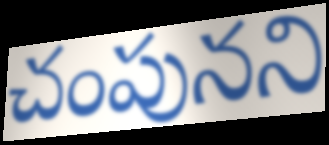
చంపునని